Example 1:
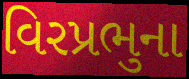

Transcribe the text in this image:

વિરપ્રભુના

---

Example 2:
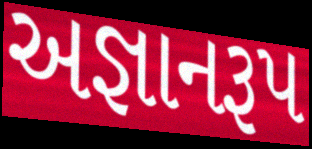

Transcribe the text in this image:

અજ્ઞાનરૂપ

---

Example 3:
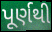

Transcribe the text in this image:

પૂર્ણથી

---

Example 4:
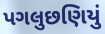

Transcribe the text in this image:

પગલુછણિયું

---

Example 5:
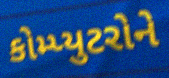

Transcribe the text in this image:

કોમ્પ્યુટરોને